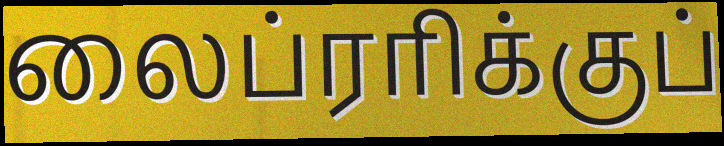
லைப்ரரிக்குப்